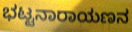
ಭಟ್ಟನಾರಾಯಣನ